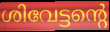
ശിവേട്ടന്റെ